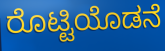
ರೊಟ್ಟಿಯೊಡನೆ